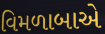
વિમળાબાએ